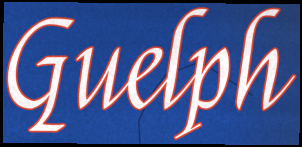
Guelph